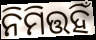
ନିମିତ୍ତହିଁ